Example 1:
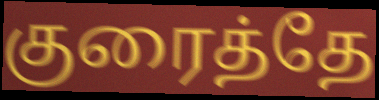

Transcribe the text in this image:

குரைத்தே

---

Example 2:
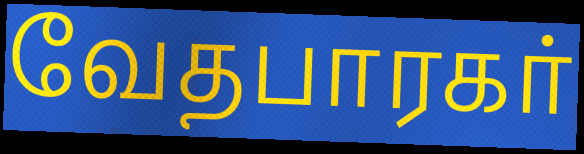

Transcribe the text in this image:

வேதபாரகர்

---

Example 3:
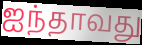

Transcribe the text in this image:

ஐந்தாவது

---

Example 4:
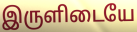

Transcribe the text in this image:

இருளிடையே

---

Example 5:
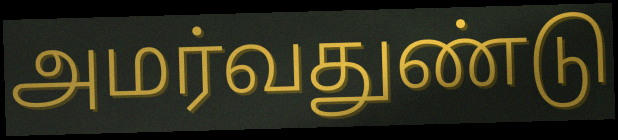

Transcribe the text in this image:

அமர்வதுண்டு